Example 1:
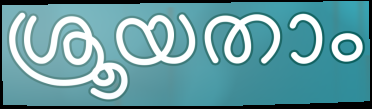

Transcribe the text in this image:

ശ്രൂയതാം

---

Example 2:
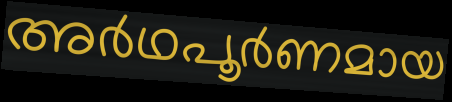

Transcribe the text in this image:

അർഥപൂർണമായ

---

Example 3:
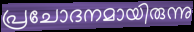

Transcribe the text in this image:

പ്രചോദനമായിരുന്നു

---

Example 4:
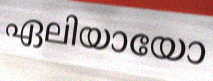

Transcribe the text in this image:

ഏലിയായോ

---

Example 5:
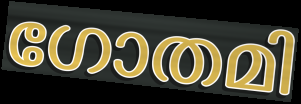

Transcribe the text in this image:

ഗോതമി